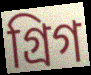
গ্রিগ